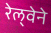
रेल्वेने